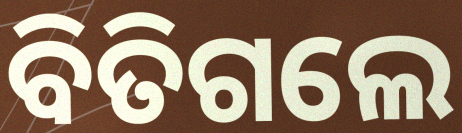
ବିତିଗଲେ